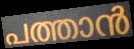
പത്താൻ